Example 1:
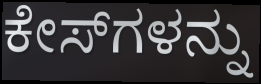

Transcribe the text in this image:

ಕೇಸ್‌ಗಳನ್ನು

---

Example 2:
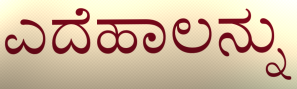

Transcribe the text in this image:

ಎದೆಹಾಲನ್ನು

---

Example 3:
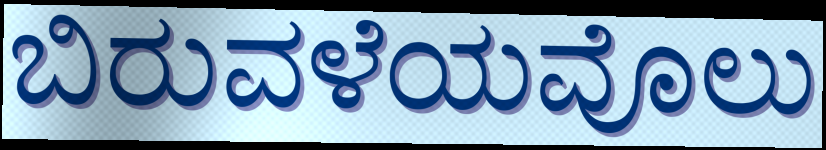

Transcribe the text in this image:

ಬಿರುವಳೆಯವೊಲು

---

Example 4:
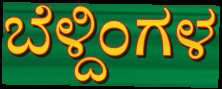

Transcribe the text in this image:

ಬೆಳ್ದಿಂಗಳ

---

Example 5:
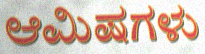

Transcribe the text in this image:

ಆಮಿಷಗಳು